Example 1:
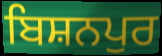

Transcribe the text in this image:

ਬਿਸ਼ਨਪੁਰ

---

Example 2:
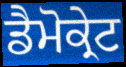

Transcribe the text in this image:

ਡੈਮੋਕ੍ਰੇਟ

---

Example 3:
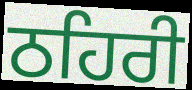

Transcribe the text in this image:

ਠਹਿਰੀ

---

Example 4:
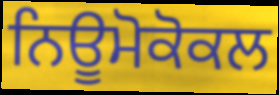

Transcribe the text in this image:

ਨਿਊਮੋਕੋਕਲ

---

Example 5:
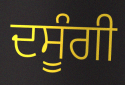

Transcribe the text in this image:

ਦਸੂੰਗੀ